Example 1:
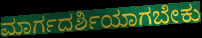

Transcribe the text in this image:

ಮಾರ್ಗದರ್ಶಿಯಾಗಬೇಕು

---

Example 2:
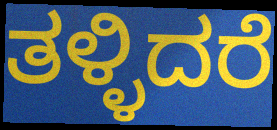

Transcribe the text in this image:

ತಳ್ಳಿದರೆ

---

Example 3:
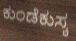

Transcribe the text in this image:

ಕುಂಡೆಕುಸ್ಕ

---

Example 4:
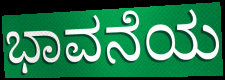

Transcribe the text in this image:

ಭಾವನೆಯ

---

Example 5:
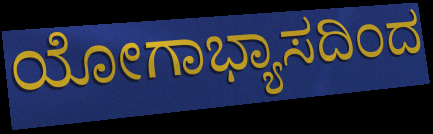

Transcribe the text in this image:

ಯೋಗಾಭ್ಯಾಸದಿಂದ